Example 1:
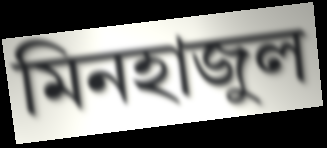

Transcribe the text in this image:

মিনহাজুল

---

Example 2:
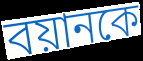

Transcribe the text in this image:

বয়ানকে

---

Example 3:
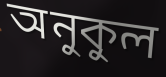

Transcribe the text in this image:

অনুকুল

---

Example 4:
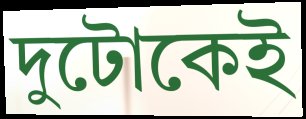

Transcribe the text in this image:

দুটোকেই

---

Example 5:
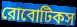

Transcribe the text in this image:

রোবোটিকস